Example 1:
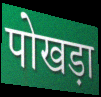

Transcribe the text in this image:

पोखड़ा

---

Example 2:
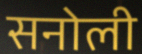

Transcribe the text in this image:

सनोली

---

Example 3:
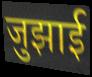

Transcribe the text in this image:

जुझाई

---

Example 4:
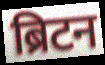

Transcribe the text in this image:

ब्रिटन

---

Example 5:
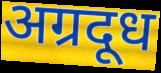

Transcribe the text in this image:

अग्रदूध